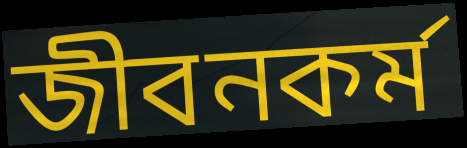
জীবনকর্ম